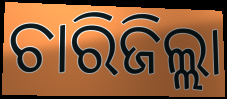
ଚାରିଜିଲ୍ଲା